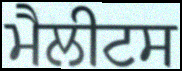
ਮੈਲੀਟਸ